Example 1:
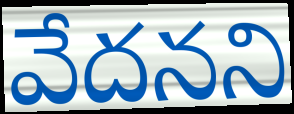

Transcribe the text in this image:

వేదనని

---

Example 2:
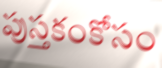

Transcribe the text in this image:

పుస్తకంకోసం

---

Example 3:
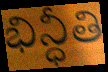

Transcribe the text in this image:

భిన్ధీతి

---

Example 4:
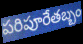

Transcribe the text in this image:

పరిపూరేతబ్బం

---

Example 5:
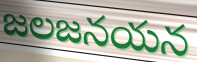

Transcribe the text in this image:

జలజనయన